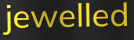
jewelled